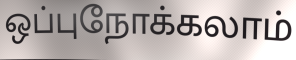
ஒப்புநோக்கலாம்